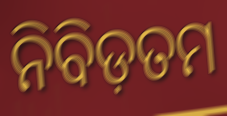
ନିବିଡ଼ତମ